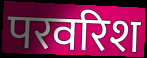
परवरिश